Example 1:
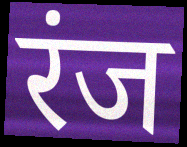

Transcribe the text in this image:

रंज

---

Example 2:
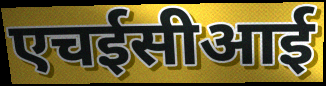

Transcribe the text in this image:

एचईसीआई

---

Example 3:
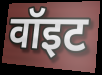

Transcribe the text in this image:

वॉइट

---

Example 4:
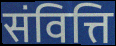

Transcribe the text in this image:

संवित्ति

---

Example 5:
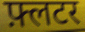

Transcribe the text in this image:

फ़्लटर